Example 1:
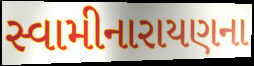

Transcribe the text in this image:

સ્વામીનારાયણના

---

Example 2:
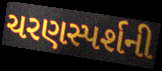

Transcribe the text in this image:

ચરણસ્પર્શની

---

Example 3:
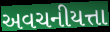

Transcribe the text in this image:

અવચનીયત્તા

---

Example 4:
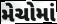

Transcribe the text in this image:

મેચોમાં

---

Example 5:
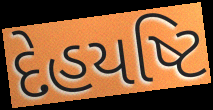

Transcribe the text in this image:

દેહયષ્ટિ